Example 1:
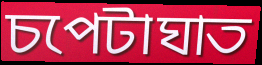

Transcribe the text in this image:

চপেটাঘাত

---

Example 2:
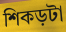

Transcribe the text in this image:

শিকড়টা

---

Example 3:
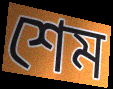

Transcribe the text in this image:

শেম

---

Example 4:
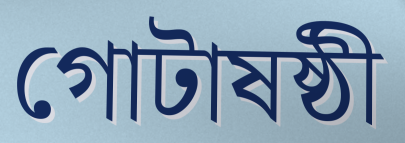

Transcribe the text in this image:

গোটাষষ্ঠী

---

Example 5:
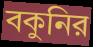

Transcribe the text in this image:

বকুনির